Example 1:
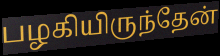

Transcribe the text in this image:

பழகியிருந்தேன்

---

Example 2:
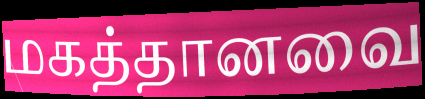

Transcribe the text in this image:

மகத்தானவை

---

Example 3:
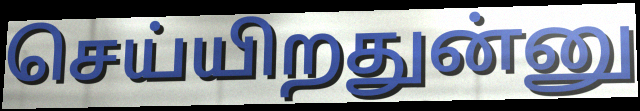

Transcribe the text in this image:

செய்யிறதுன்னு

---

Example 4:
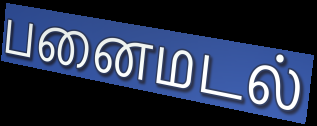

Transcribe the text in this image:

பனைமடல்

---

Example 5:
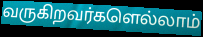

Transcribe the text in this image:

வருகிறவர்களெல்லாம்